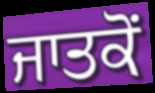
ਜਾਤਕੋਂ